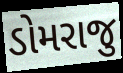
ડોમરાજુ